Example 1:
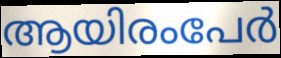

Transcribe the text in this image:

ആയിരംപേർ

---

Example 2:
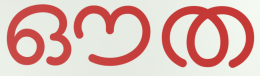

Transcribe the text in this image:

ഔത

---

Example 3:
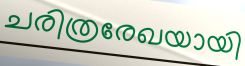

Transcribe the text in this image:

ചരിത്രരേഖയായി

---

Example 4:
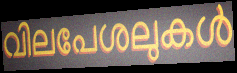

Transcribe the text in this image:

വിലപേശലുകൾ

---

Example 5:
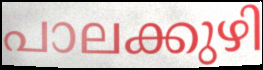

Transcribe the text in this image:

പാലക്കുഴി